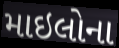
માઇલોના